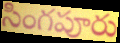
సింగపూరు